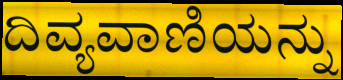
ದಿವ್ಯವಾಣಿಯನ್ನು